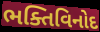
ભક્તિવિનોદ